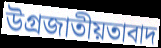
উগ্রজাতীয়তাবাদ